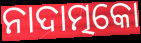
ନାଦାତ୍ମକୋ